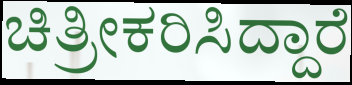
ಚಿತ್ರೀಕರಿಸಿದ್ದಾರೆ